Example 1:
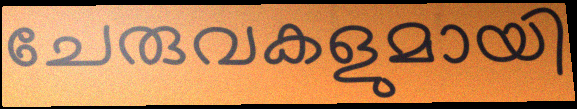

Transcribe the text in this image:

ചേരുവകളുമായി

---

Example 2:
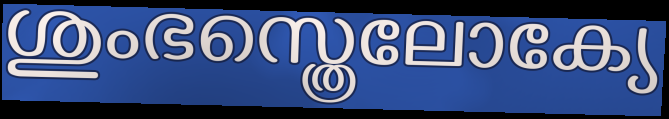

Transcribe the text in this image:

ശുംഭസ്ത്രെലോക്യേ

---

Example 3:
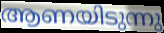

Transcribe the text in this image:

ആണയിടുന്നു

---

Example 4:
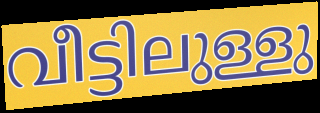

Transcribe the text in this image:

വീട്ടിലുള്ളു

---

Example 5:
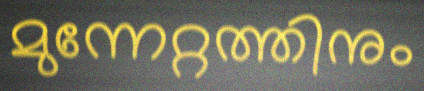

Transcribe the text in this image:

മുന്നേറ്റത്തിനും